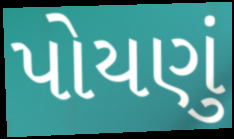
પોયણું